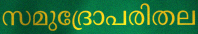
സമുദ്രോപരിതല